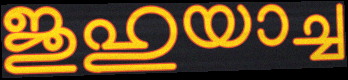
ജുഹുയാച്ച